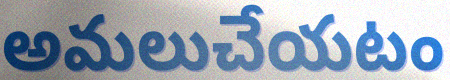
అమలుచేయటం